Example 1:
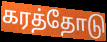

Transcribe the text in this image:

கரத்தோடு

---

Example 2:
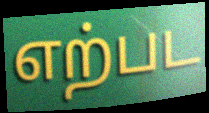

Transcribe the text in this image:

எற்பட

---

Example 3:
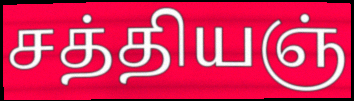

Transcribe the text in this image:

சத்தியஞ்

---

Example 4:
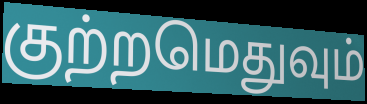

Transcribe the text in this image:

குற்றமெதுவும்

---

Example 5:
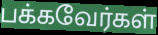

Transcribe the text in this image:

பக்கவேர்கள்